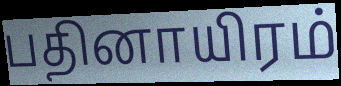
பதினாயிரம்